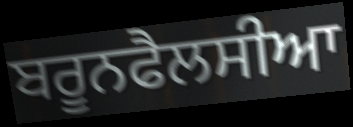
ਬਰੂਨਫੈਲਸੀਆ